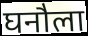
घनौला